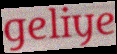
geliye